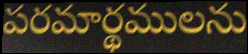
పరమార్థములను